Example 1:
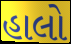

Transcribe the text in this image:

હાલો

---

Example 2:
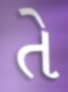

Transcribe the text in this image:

તે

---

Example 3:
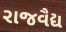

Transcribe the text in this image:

રાજવૈદ્ય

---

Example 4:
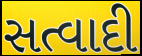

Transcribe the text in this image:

સત્વાદી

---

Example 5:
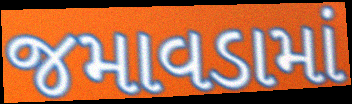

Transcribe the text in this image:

જમાવડામાં